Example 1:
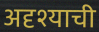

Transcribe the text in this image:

अदृश्याची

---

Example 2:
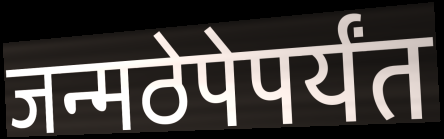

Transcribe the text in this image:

जन्मठेपेपर्यंत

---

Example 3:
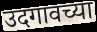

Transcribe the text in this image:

उदगावच्या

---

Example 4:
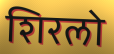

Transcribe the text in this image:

शिरलो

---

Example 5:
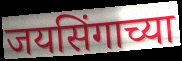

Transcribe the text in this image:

जयसिंगाच्या